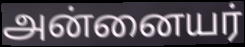
அன்னையர்